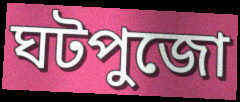
ঘটপুজো